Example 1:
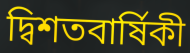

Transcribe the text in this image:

দ্বিশতবার্ষিকী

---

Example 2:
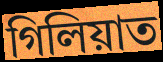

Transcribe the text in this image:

গিলিয়াত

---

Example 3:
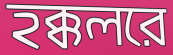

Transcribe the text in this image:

হক্কলরে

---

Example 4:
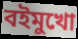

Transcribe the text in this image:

বইমুখো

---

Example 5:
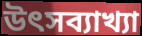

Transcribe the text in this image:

উৎসব্যাখ্যা